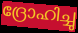
ദ്രോഹിച്ചു